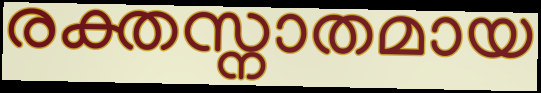
രക്തസ്നാതമായ